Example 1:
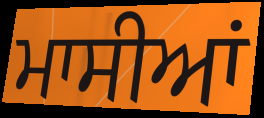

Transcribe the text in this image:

ਮਾਸੀਆਂ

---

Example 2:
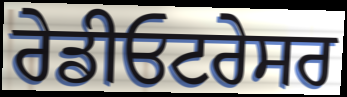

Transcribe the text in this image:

ਰੇਡੀਓਟਰੇਸਰ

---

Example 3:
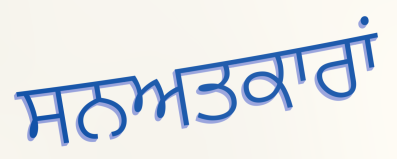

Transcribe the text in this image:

ਸਨਅਤਕਾਰਾਂ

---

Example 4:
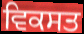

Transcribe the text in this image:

ਵਿਕਸਤ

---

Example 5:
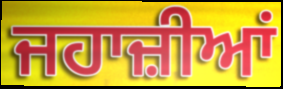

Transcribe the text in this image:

ਜਹਾਜ਼ੀਆਂ